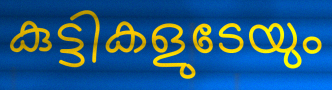
കുട്ടികളുടേയും